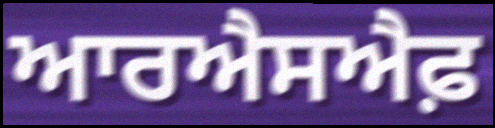
ਆਰਐਸਐਫ਼